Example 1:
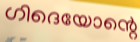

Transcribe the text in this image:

ഗിദെയോന്റെ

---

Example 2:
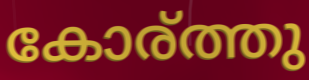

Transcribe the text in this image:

കോര്ത്തു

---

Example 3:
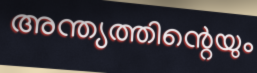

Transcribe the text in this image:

അന്ത്യത്തിന്റെയും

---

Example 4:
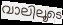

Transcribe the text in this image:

വാലിലൂടെ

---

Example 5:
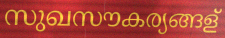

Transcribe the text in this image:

സുഖസൗകര്യങ്ങള്